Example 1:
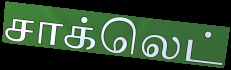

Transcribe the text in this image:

சாக்லெட்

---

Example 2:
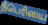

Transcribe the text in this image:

நீபெரியை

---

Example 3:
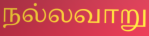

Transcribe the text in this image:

நல்லவாறு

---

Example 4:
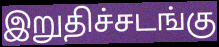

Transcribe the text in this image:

இறுதிச்சடங்கு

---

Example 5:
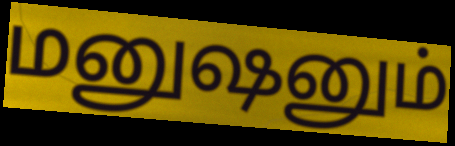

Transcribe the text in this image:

மனுஷனும்